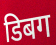
डिबग